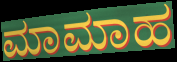
ಮಾಮಾಹ